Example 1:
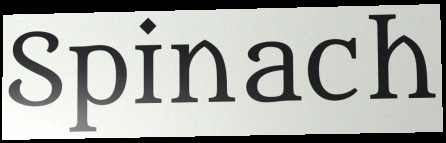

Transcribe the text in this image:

Spinach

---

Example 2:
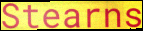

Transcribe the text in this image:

Stearns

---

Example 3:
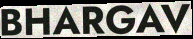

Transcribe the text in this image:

BHARGAV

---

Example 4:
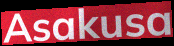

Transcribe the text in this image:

Asakusa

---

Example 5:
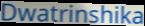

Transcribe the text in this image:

Dwatrinshika